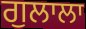
ਗੁਲਾਲਾ